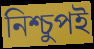
নিশ্চুপই